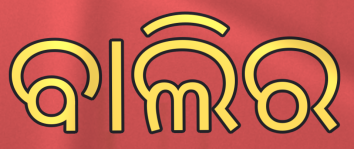
ବାଲିର